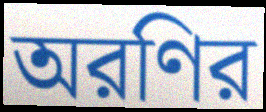
অরণির